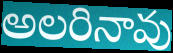
అలరినావు